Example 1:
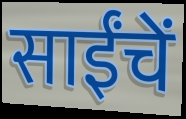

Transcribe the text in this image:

साईंचें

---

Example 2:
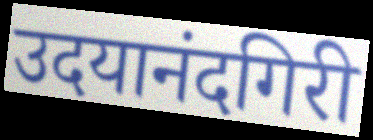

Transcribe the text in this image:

उदयानंदगिरी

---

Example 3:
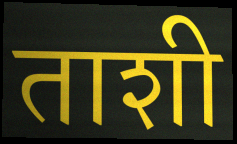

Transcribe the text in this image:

ताशी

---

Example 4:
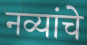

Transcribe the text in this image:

नव्यांचे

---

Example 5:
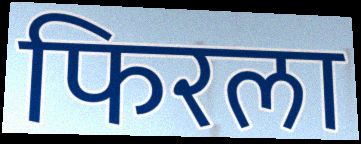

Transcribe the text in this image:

फिरला